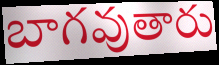
బాగవుతారు